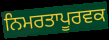
ਨਿਮਰਤਾਪੂਰਵਕ